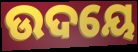
ଉଦୟେ